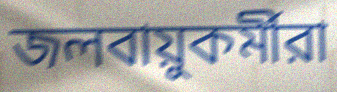
জলবায়ুকর্মীরা